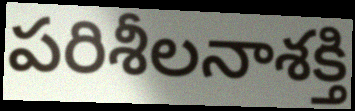
పరిశీలనాశక్తి